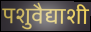
पशुवैद्याशी